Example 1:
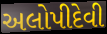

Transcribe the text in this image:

અલોપીદેવી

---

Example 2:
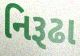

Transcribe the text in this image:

નિરૂઢા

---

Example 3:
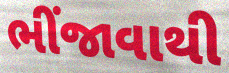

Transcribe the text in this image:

ભીંજાવાથી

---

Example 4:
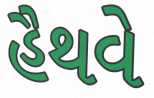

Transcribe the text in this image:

હૈથવે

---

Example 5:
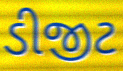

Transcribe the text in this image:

ડીજીટ